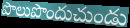
పొలుపొందుచుండు